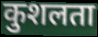
कुशलता